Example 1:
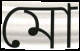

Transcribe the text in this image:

মো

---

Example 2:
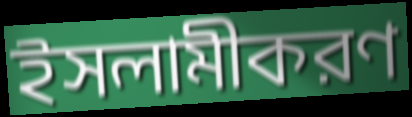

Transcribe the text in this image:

ইসলামীকরণ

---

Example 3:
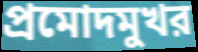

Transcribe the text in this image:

প্রমোদমুখর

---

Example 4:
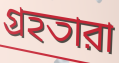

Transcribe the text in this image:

গ্রহতারা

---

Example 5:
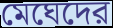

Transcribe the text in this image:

মেঘেদের